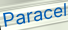
Paracel